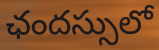
ఛందస్సులో